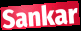
Sankar